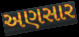
અણસાર